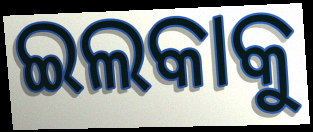
ଇଲକାକୁ